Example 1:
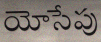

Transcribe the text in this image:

యోసేపు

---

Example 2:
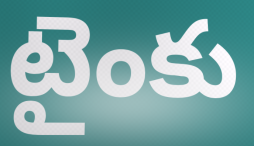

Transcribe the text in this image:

టైంకు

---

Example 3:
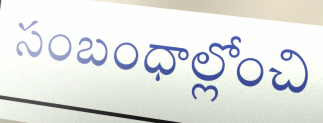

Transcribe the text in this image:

సంబంధాల్లోంచి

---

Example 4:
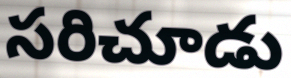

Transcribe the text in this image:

సరిచూడు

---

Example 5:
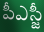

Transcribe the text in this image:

పీఎస్జీ